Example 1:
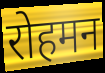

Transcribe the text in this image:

रोहमन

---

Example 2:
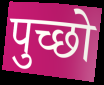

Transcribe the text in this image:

पुच्छो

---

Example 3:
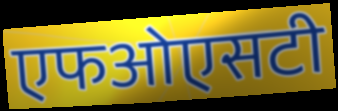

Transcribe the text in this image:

एफओएसटी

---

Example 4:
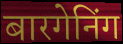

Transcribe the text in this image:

बारगेनिंग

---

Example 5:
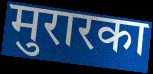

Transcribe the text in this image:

मुरारका